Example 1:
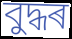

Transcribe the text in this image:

বুদ্ধৰ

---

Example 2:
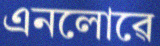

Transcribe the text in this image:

এনলোৱে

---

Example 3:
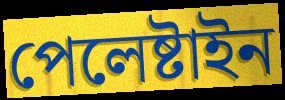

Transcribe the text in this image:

পেলেষ্টাইন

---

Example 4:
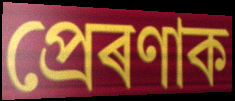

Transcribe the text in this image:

প্ৰেৰণাক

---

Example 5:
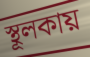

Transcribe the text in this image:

স্থূলকায়